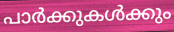
പാർക്കുകൾക്കും